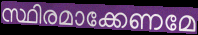
സ്ഥിരമാക്കേണമേ